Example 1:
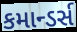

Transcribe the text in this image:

કમાન્ડર્સ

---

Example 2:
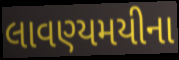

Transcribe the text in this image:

લાવણ્યમયીના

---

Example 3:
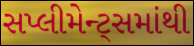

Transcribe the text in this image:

સપ્લીમેન્ટ્સમાંથી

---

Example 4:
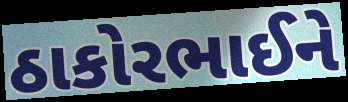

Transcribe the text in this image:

ઠાકોરભાઈને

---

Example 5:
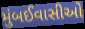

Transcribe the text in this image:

મુંબઈવાસીઓ